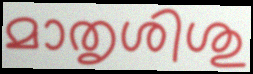
മാതൃശിശു